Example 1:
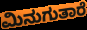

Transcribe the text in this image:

ಮಿನುಗುತಾರೆ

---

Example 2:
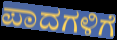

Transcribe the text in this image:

ಪಾದಗಳಿಗೆ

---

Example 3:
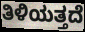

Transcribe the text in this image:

ತಿಳಿಯತ್ತದೆ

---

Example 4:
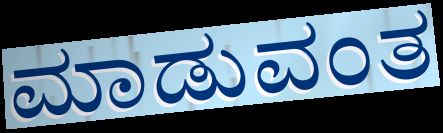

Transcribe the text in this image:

ಮಾಡುವಂತ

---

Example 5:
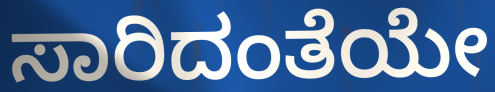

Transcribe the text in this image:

ಸಾರಿದಂತೆಯೇ